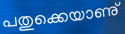
പതുക്കെയാണു്